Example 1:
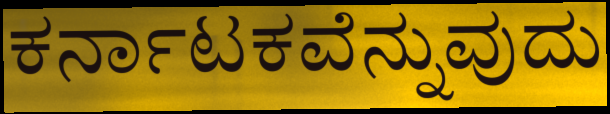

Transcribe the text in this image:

ಕರ್ನಾಟಕವೆನ್ನುವುದು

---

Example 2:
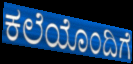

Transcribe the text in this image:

ಕಲೆಯೊಂದಿಗೆ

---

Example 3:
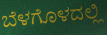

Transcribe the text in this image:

ಬೆಳಗೊಳದಲ್ಲಿ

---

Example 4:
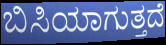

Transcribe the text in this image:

ಬಿಸಿಯಾಗುತ್ತದೆ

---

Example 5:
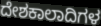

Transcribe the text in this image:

ದೇಶಕಾಲಾದಿಗಳ